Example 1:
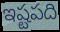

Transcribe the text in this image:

ఇష్టపది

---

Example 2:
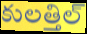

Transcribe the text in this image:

కులత్తిల్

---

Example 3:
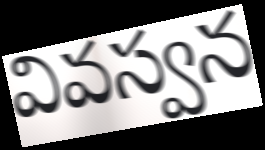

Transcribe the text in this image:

వివస్వన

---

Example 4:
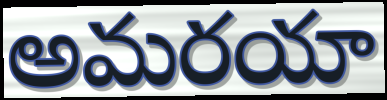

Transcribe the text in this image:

అమరయా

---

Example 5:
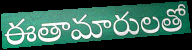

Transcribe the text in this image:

ఈతామారులతో